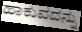
ಹಾಕುವದನ್ನು